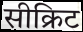
सीक्रिट